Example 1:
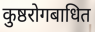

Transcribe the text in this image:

कुष्ठरोगबाधित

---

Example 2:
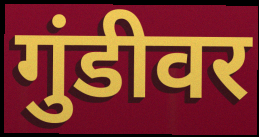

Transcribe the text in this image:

गुंडीवर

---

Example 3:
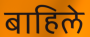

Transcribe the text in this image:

बाहिले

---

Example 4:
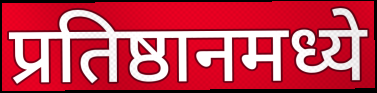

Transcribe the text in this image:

प्रतिष्ठानमध्ये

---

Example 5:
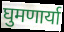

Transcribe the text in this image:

घुमणार्या